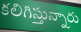
కలిగిస్తున్నారు